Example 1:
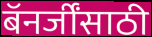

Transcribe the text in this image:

बॅनर्जींसाठी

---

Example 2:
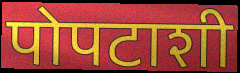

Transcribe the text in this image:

पोपटाशी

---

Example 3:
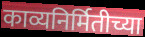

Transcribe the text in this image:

काव्यनिर्मितीच्या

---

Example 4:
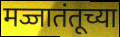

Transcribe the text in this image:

मज्जातंतूच्या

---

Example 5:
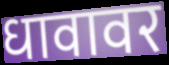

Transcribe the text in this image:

धावावर